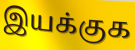
இயக்குக